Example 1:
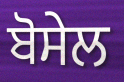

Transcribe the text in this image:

ਬੋਸੇਲ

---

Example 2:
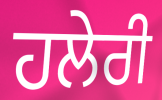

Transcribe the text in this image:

ਹਲੇਰੀ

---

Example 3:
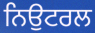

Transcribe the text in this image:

ਨਿਉਟਰਲ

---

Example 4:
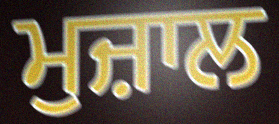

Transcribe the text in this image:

ਮੁਜ਼ਾਲ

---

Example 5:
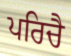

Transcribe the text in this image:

ਪਰਿਚੈ